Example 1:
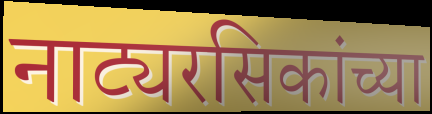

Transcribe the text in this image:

नाट्यरसिकांच्या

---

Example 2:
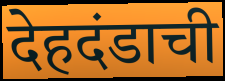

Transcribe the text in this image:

देहदंडाची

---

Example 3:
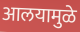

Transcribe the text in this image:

आलयामुळे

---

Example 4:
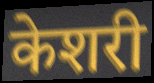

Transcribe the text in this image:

केशरी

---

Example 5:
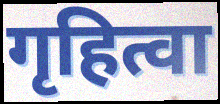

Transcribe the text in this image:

गृहित्वा